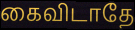
கைவிடாதே